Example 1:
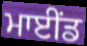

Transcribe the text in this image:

ਮਾਈਂਡ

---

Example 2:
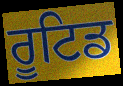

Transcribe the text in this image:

ਰੂਟਿਡ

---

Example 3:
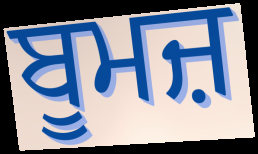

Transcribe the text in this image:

ਬੂਮਜ਼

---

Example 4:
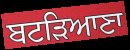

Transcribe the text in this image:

ਬਟੜਿਆਣਾ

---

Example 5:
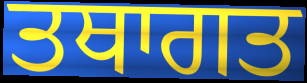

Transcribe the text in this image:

ਤਥਾਗਤ